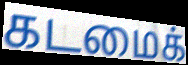
கடமைக்